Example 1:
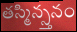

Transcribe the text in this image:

తస్మిన్స్తనం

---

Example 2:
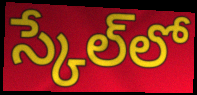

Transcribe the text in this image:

స్కేల్‌లో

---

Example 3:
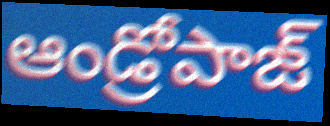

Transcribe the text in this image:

ఆండ్రోపాజ్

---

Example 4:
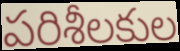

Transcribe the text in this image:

పరిశీలకుల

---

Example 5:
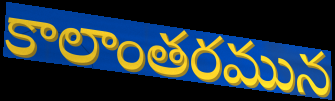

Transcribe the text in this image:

కాలాంతరమున